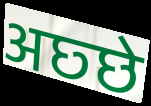
अछ्छे